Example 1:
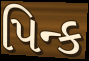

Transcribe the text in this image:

પિન્ક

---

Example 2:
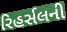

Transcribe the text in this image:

રિહર્સલની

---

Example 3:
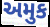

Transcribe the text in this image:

અમુક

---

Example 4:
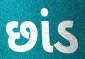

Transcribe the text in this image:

છાંડ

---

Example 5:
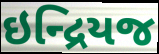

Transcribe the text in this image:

ઇન્દ્રિયજ